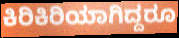
ಕಿರಿಕಿರಿಯಾಗಿದ್ದರೂ